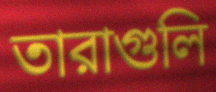
তারাগুলি